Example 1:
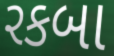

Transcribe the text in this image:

રકબા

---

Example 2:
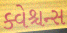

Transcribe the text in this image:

ક્વેશ્ચન્સ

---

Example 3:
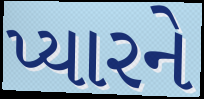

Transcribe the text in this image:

પ્યારને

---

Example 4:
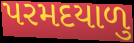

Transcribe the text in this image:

પરમદયાળુ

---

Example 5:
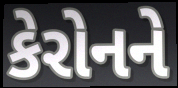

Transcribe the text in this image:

કેરોનને